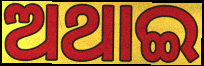
ଅଥାଇ